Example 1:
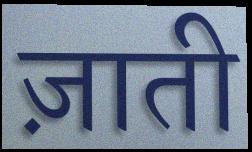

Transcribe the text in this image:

ज़ाती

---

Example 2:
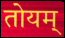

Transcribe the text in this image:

तोयम्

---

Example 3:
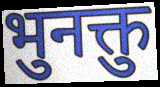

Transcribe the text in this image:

भुनक्तु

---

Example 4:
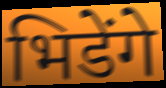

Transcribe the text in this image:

भिडेंगे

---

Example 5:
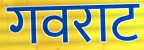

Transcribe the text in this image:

गवराट